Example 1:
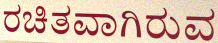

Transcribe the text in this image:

ರಚಿತವಾಗಿರುವ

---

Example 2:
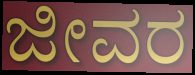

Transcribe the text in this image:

ಜೀವರ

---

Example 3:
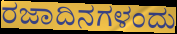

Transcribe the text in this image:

ರಜಾದಿನಗಳಂದು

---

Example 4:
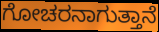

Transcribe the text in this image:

ಗೋಚರನಾಗುತ್ತಾನೆ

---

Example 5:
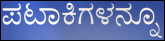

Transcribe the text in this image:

ಪಟಾಕಿಗಳನ್ನೂ